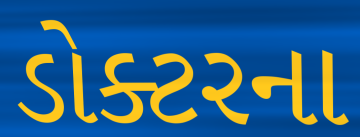
ડોક્ટરના